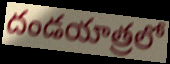
దండయాత్రలో